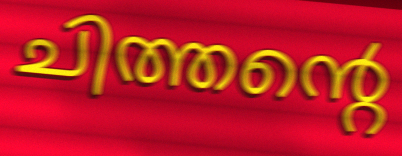
ചിത്തന്റെ